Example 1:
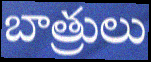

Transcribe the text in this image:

బాత్రులు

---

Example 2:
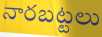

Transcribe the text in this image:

నారబట్టలు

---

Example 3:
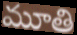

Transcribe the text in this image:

మూతి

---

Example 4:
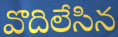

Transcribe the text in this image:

వొదిలేసిన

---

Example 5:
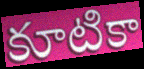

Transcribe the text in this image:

కూటికా